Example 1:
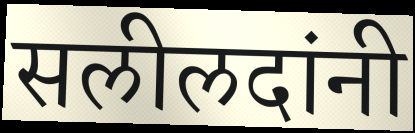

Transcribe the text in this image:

सलीलदांनी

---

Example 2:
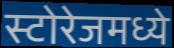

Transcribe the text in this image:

स्टोरेजमध्ये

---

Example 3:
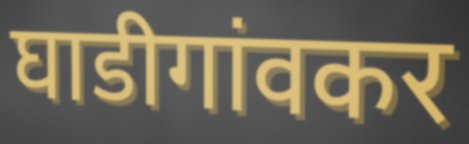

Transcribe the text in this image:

घाडीगांवकर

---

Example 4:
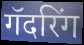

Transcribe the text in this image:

गॅदरिंग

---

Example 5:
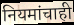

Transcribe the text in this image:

नियमांचाही